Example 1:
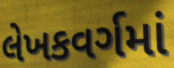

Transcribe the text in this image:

લેખકવર્ગમાં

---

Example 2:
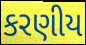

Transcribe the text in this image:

કરણીય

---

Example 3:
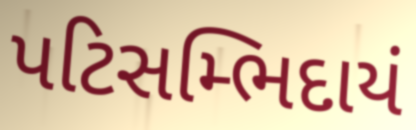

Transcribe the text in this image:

પટિસમ્ભિદાયં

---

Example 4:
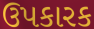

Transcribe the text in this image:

ઉપકારક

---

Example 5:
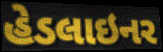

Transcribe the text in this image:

હેડલાઇનર